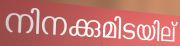
നിനക്കുമിടയില്